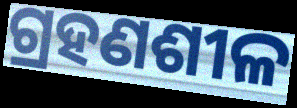
ଗ୍ରହଣଶୀଳ